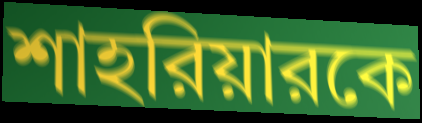
শাহরিয়ারকে